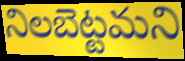
నిలబెట్టమని